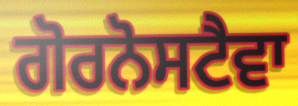
ਗੋਰਨੋਸਟੈਵਾ